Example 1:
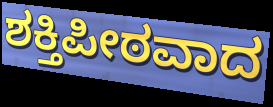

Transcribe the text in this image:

ಶಕ್ತಿಪೀಠವಾದ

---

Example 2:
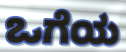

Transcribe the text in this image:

ಒಗೆಯ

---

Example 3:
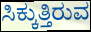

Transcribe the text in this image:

ಸಿಕ್ಕುತ್ತಿರುವ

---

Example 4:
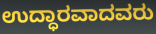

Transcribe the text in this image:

ಉದ್ಧಾರವಾದವರು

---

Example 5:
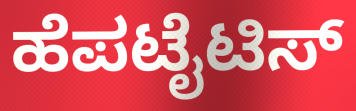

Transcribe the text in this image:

ಹೆಪಟೈಟಿಸ್